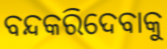
ବନ୍ଦକରିଦେବାକୁ